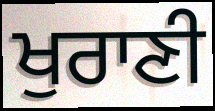
ਖੁਰਾਣੀ